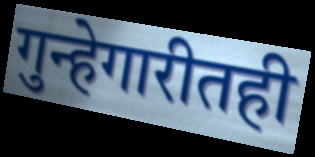
गुन्हेगारीतही